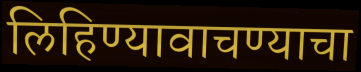
लिहिण्यावाचण्याचा